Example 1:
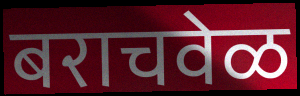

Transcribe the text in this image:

बराचवेळ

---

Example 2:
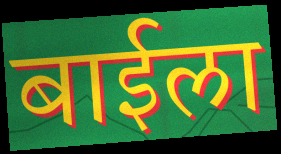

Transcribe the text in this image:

बाईला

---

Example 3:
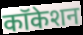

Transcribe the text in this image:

कॉकेशन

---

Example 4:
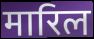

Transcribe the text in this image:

मारिल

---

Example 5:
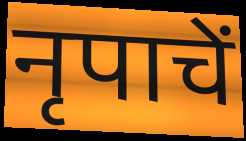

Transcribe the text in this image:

नृपाचें